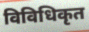
विविधिकृत